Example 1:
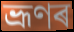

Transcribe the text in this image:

ভ্ৰূণৰ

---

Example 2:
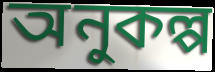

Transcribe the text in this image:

অনুকল্প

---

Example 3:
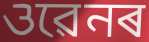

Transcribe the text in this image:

ওৱেনৰ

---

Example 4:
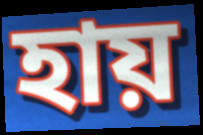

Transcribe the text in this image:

হায়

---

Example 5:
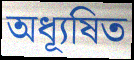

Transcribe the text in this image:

অধ্যূষিত